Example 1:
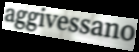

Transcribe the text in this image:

aggivessano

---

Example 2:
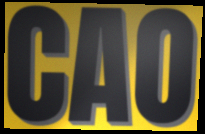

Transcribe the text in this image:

CAO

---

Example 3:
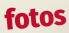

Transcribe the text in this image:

fotos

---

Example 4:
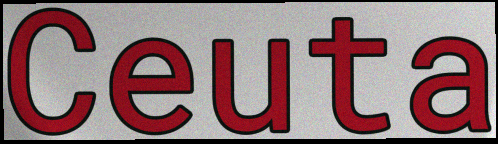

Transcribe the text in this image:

Ceuta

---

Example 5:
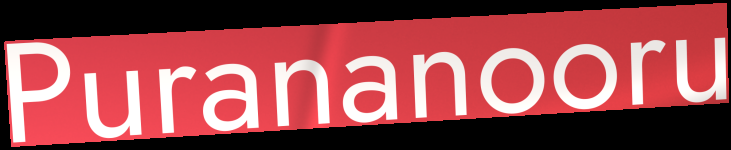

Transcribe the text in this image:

Purananooru